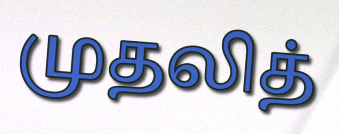
முதலித்